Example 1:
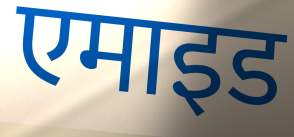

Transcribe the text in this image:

एमाइड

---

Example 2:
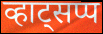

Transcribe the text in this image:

व्हाट्सप्प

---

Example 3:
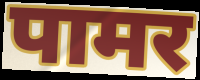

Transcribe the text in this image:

पामर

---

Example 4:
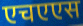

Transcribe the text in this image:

एचएएस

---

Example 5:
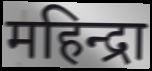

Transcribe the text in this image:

महिन्द्रा